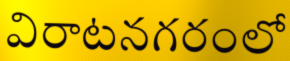
విరాటనగరంలో